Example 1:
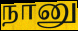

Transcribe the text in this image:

நானு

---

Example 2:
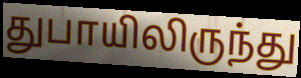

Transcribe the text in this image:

துபாயிலிருந்து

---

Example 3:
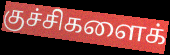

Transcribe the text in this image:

குச்சிகளைக்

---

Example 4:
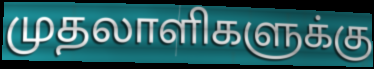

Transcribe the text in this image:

முதலாளிகளுக்கு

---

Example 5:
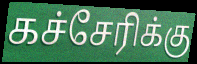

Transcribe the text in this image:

கச்சேரிக்கு